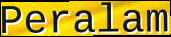
Peralam